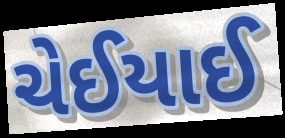
ચેઈયાઈ